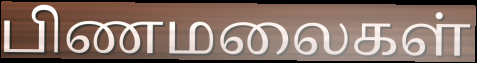
பிணமலைகள்